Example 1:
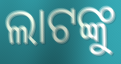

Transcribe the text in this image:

ଲାଟଙ୍କୁ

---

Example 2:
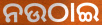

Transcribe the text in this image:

ନଉଠାଇ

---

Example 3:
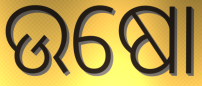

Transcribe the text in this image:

ଉଷୋ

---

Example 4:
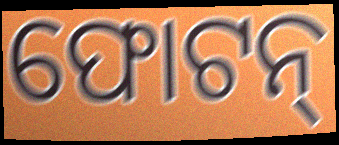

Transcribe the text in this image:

ଫୋଟନ୍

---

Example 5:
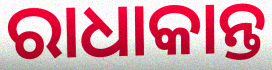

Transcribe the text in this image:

ରାଧାକାନ୍ତ